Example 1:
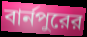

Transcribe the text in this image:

বার্নপুরের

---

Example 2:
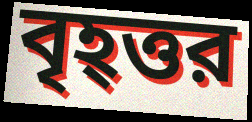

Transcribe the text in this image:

বৃহ্ত্তর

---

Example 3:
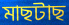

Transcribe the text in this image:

মাছটাছ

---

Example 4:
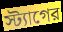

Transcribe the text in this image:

স্ট্যাগের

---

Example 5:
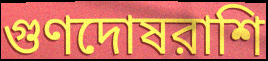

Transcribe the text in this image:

গুণদোষরাশি